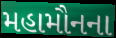
મહામૌનના